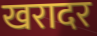
खरादर